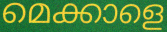
മെക്കാളെ